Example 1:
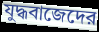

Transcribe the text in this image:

যুদ্ধবাজেদের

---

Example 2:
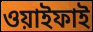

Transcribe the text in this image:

ওয়াইফাই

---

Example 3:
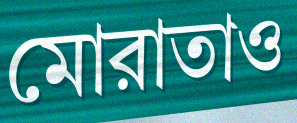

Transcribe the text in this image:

মোরাতাও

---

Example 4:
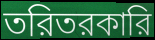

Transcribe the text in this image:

তরিতরকারি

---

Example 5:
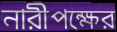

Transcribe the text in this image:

নারীপক্ষের